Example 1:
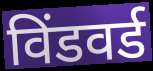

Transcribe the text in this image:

विंडवर्ड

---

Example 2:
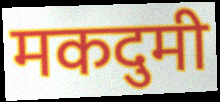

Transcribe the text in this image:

मकदुमी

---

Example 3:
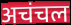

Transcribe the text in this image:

अचंचल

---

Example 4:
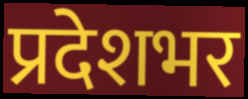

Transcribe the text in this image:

प्रदेशभर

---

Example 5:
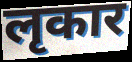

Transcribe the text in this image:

लृकार